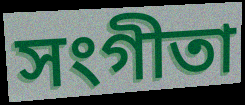
সংগীতা